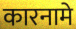
कारनामे